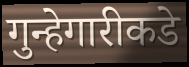
गुन्हेगारीकडे